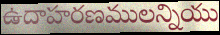
ఉదాహరణములన్నియు